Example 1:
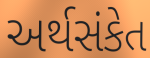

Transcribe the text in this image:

અર્થસંકેત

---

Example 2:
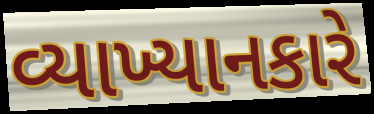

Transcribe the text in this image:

વ્યાખ્યાનકારે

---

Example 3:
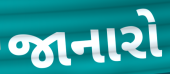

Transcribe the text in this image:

જાનારો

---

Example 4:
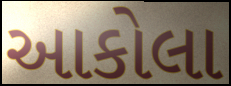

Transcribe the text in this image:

આકોલા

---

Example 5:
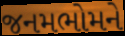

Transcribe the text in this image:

જનમભોમને